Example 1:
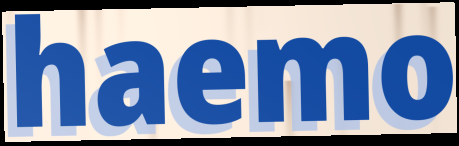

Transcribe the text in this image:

haemo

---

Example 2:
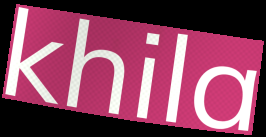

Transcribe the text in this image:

khila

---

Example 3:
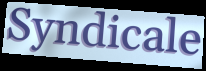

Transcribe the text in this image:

Syndicale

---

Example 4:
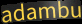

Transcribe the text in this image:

adambu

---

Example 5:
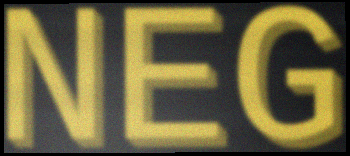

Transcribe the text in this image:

NEG